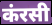
कंरसी